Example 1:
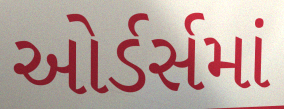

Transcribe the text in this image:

ઓર્ડર્સમાં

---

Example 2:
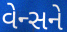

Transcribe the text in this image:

વેન્સને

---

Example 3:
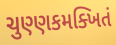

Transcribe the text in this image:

ચુણ્ણકમક્ખિતં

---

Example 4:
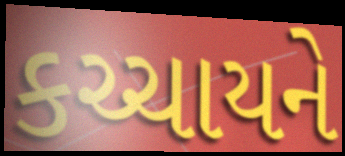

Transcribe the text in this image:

કચ્ચાયને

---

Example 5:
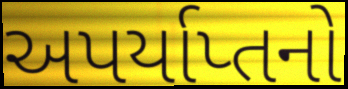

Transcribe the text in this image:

અપર્યાપ્તનો